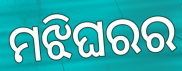
ମଝିଘରର